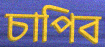
চাপিব